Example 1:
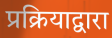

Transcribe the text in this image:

प्रक्रियाद्वारा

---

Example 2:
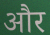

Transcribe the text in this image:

और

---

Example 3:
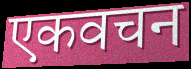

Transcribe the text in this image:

एकवचन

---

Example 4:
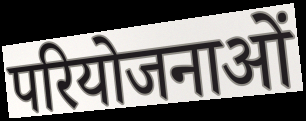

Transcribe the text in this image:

परियोजनाओं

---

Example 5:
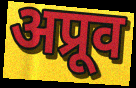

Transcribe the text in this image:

अप्रूव